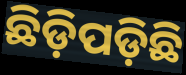
ଛିଡ଼ିପଡ଼ିଛି